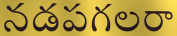
నడపగలరా